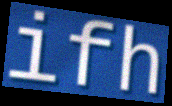
ifh